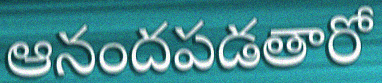
ఆనందపడతారో